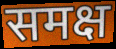
समक्ष